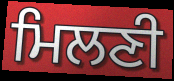
ਮਿਲਣੀ